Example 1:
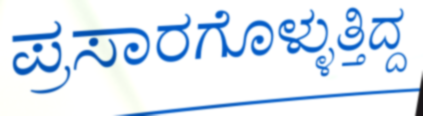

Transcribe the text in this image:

ಪ್ರಸಾರಗೊಳ್ಳುತ್ತಿದ್ದ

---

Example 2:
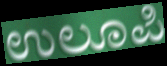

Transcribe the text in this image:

ಉಲೂಪಿ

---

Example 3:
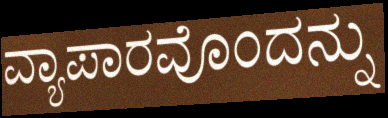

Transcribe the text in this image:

ವ್ಯಾಪಾರವೊಂದನ್ನು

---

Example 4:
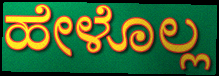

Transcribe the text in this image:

ಹೇಳೊಲ್ಲ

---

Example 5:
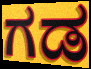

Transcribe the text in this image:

ಗಡ